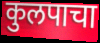
कुलपाचा